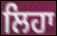
ਲਿਹਾ